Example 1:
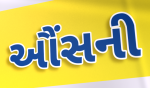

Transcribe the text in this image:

ઔંસની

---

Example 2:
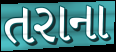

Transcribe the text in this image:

તરાના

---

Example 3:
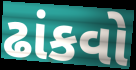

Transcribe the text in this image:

ઢાંકવો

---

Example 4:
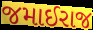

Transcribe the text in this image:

જમાઈરાજ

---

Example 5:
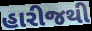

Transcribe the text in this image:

હારીજથી